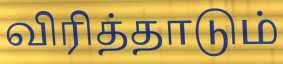
விரித்தாடும்